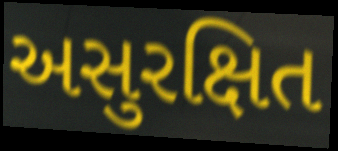
અસુરક્ષિત